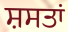
ਸ਼ਸਤਾਂ